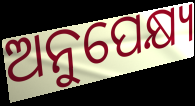
ଅନୁପେକ୍ଷ୍ୟ